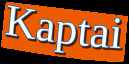
Kaptai